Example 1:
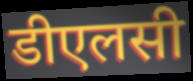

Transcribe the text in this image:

डीएलसी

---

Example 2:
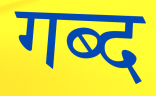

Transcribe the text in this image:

गब्द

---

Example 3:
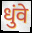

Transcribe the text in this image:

धुंवे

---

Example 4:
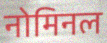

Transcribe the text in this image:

नोमिनल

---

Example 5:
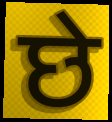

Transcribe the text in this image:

छे